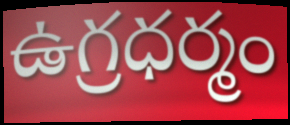
ఉగ్రధర్మం